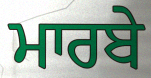
ਮਾਰਬੇ